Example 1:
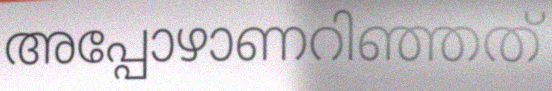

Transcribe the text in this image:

അപ്പോഴാണറിഞ്ഞത്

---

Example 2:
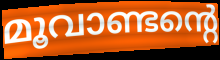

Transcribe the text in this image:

മൂവാണ്ടന്റെ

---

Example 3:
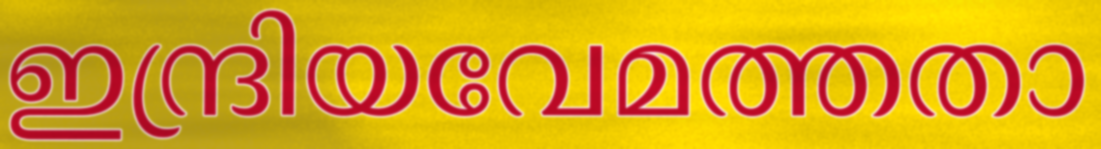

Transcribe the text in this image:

ഇന്ദ്രിയവേമത്തതാ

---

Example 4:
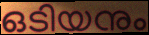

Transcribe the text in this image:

ഒടിയനും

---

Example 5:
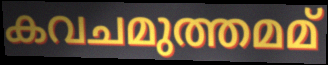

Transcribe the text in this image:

കവചമുത്തമമ്